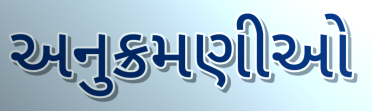
અનુક્રમણીઓ